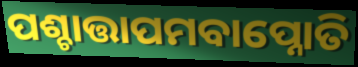
ପଶ୍ଚାତ୍ତାପମବାପ୍ନୋତି